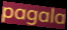
pagala